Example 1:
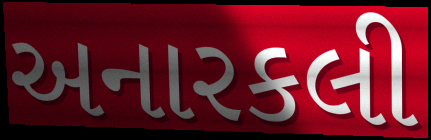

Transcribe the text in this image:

અનારકલી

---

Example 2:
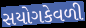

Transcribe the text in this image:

સયોગકેવળી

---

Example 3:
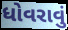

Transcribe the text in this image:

ધોવરાવું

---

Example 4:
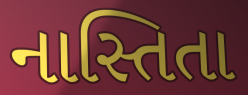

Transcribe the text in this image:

નાસ્તિતા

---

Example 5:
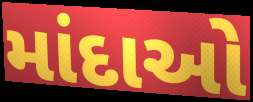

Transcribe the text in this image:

માંદાઓ